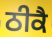
ਠੀਕੈ